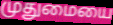
முதுமையை